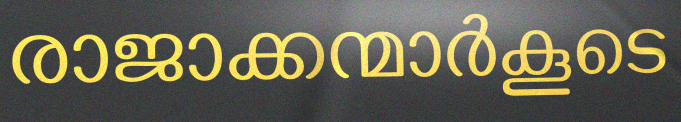
രാജാക്കന്മാർകൂടെ